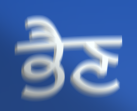
ਭੈਣ